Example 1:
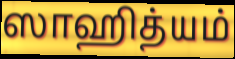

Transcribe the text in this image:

ஸாஹித்யம்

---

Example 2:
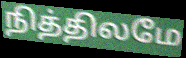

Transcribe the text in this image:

நித்திலமே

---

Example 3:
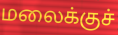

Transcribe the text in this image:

மலைக்குச்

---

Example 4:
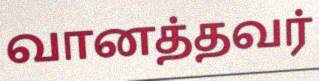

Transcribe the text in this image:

வானத்தவர்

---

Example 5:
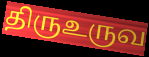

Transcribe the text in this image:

திருஉருவ